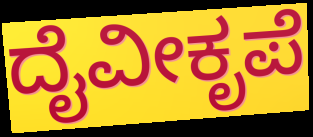
ದೈವೀಕೃಪೆ